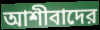
আশীবাদের